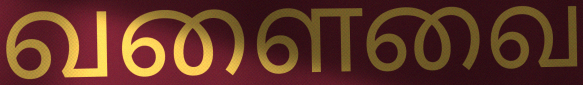
வளைவை